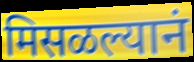
मिसळल्यानं